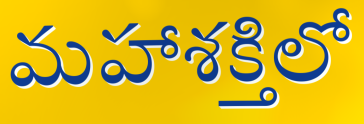
మహాశక్తిలో